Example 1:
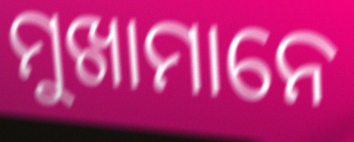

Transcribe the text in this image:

ମୁଖାମାନେ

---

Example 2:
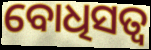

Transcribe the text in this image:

ବୋଧିସତ୍ବ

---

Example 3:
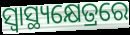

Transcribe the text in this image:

ସ୍ୱାସ୍ଥ୍ୟକ୍ଷେତ୍ରରେ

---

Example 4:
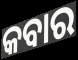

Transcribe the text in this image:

କବାର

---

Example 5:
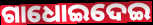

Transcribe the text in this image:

ଗାଧୋଇଦେଇ